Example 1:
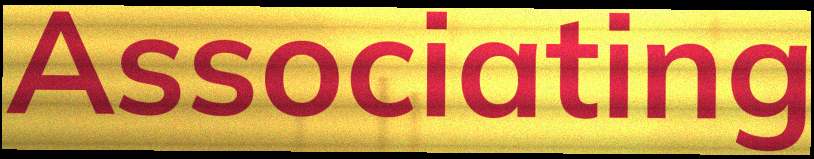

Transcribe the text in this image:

Associating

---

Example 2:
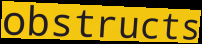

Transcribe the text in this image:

obstructs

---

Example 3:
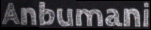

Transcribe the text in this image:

Anbumani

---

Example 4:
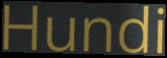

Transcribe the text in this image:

Hundi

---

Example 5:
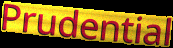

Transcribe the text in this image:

Prudential